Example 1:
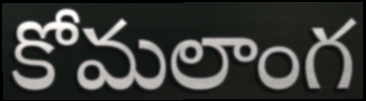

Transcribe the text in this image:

కోమలాంగ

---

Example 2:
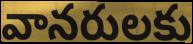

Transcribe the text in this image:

వానరులకు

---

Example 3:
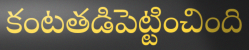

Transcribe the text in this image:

కంటతడిపెట్టించింది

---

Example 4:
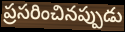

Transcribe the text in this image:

ప్రసరించినప్పుడు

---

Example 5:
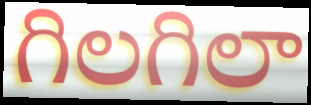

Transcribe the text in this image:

గిలగిలా